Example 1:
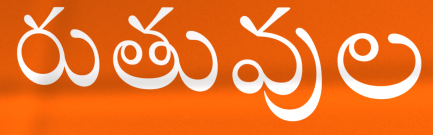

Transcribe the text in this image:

రుతువుల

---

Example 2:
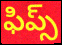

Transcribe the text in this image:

ఫిప్స్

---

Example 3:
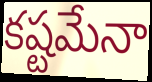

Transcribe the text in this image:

కష్టమేనా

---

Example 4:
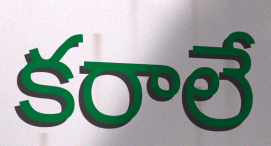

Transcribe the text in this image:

కరాలే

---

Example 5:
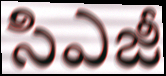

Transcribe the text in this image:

సిఎజీ